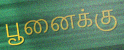
பூனைக்கு